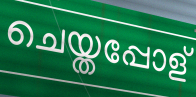
ചെയ്തപ്പോള്